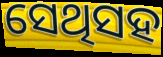
ସେଥିସହ